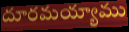
దూరమయ్యాము